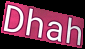
Dhah